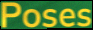
Poses